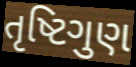
તૃષ્ટિગુણ